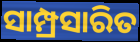
ସାମ୍ପ୍ରସାରିତ